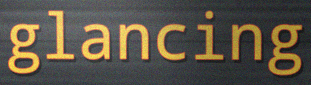
glancing